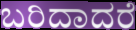
ಬರಿದಾದರೆ